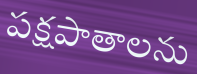
పక్షపాతాలను